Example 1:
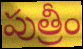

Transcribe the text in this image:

పుత్రీం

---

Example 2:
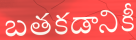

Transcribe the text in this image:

బతకడానికీ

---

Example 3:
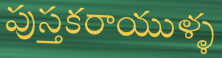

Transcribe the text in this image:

పుస్తకరాయుళ్ళ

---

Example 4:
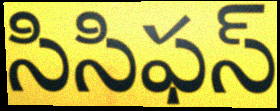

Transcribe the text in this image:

సిసిఫస్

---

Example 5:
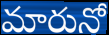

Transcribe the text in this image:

మారునో